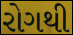
રોગથી